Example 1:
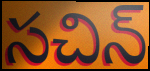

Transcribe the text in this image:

సచిన్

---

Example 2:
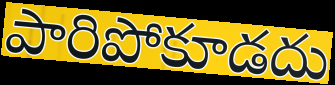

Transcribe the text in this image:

పారిపోకూడదు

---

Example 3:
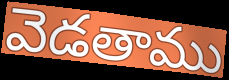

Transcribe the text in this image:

వెడతాము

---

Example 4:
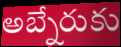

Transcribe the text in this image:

అబ్నేరుకు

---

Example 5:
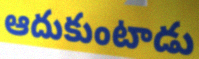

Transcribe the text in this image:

ఆదుకుంటాడు